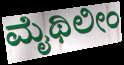
ಮೈಥಿಲೀಂ